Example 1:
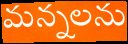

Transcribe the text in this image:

మన్నలను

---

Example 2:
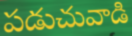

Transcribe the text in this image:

పడుచువాడి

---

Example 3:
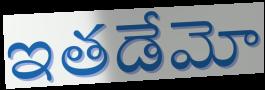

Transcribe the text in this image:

ఇతడేమో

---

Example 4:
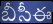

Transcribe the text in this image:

బీసీఈ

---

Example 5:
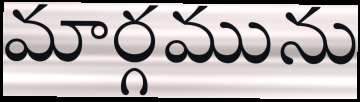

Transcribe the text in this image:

మార్గమును